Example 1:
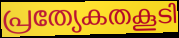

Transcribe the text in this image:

പ്രത്യേകതകൂടി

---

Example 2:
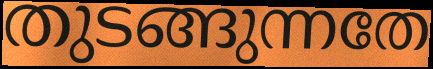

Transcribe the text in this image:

തുടങ്ങുന്നതേ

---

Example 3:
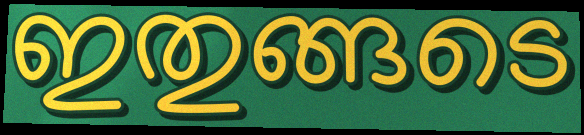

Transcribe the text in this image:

ഇതുങ്ങടെ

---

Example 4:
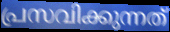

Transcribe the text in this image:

പ്രസവിക്കുന്നത്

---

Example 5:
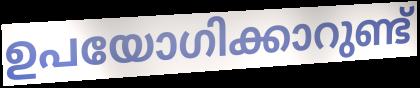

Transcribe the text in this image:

ഉപയോഗിക്കാറുണ്ട്